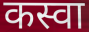
कस्वा